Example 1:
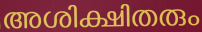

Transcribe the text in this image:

അശിക്ഷിതരും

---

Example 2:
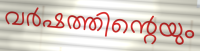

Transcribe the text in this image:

വർഷത്തിന്റെയും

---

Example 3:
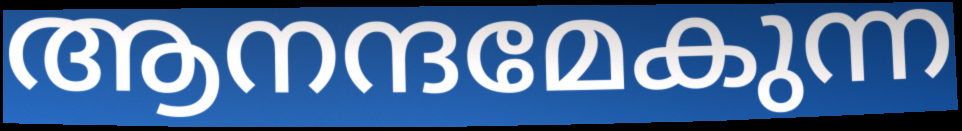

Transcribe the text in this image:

ആനന്ദമേകുന്ന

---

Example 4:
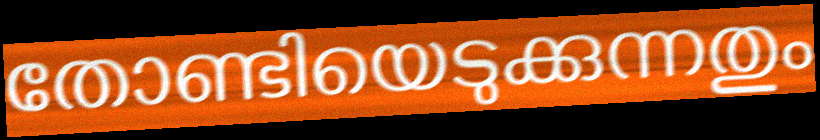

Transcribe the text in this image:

തോണ്ടിയെടുക്കുന്നതും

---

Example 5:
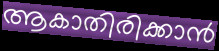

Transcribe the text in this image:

ആകാതിരിക്കാൻ